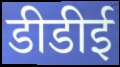
डीडीई